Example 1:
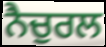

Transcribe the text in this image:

ਨੈਚੁਰਲ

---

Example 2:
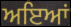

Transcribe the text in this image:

ਅਇਆਂ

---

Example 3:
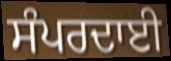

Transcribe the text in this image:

ਸੰਪਰਦਾਈ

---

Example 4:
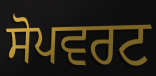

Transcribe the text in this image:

ਸੋਪਵਰਟ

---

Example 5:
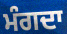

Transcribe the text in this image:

ਮੰਗਦਾ